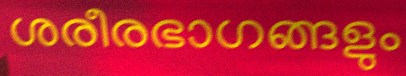
ശരീരഭാഗങ്ങളും